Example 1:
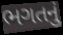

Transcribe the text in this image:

ભગતનું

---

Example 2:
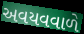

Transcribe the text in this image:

અવયવવાળે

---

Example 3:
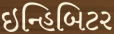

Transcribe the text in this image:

ઇન્હિબિટર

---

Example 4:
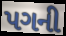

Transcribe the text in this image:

પગની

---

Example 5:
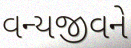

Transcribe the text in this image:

વન્યજીવને